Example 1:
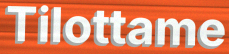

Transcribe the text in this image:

Tilottame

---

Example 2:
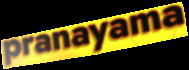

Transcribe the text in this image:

pranayama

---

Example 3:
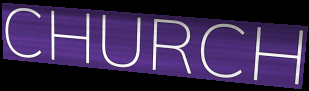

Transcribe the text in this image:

CHURCH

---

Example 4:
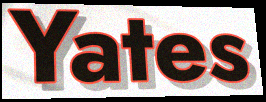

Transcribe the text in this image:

Yates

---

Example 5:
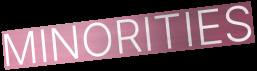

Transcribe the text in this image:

MINORITIES